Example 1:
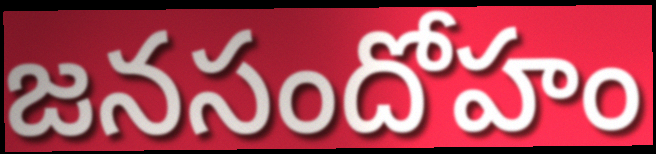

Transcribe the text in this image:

జనసందోహం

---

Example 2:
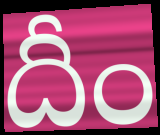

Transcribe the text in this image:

దీం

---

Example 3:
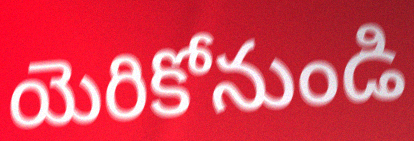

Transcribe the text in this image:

యెరికోనుండి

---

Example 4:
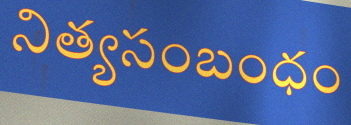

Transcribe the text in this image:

నిత్యసంబంధం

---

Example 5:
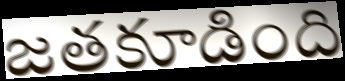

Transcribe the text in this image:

జతకూడింది